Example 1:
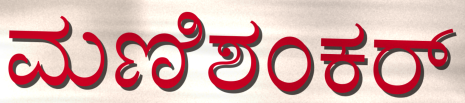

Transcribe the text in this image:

ಮಣಿಶಂಕರ್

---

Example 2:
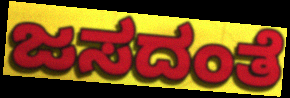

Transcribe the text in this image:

ಜಸದಂತೆ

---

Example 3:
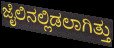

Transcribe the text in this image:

ಜೈಲಿನಲ್ಲಿಡಲಾಗಿತ್ತು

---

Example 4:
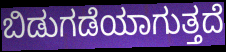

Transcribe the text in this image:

ಬಿಡುಗಡೆಯಾಗುತ್ತದೆ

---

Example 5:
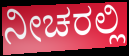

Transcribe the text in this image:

ನೀಚರಲ್ಲಿ